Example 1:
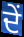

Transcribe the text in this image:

ਦੇਂ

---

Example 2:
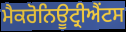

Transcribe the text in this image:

ਮੈਕਰੋਨਿਊਟ੍ਰੀਐਂਟਸ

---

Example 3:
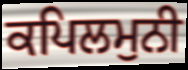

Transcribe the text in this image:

ਕਪਿਲਮੁਨੀ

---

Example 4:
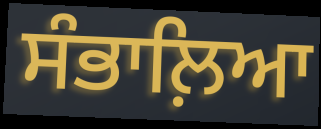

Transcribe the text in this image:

ਸੰਭਾਲ਼ਿਆ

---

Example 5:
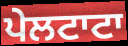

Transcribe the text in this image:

ਪੇਲਟਾਟਾ